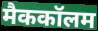
मैककॉलम